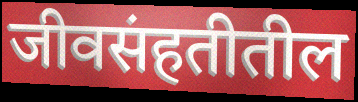
जीवसंहतीतील